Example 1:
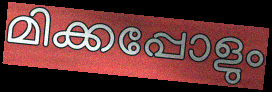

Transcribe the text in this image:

മിക്കപ്പോളും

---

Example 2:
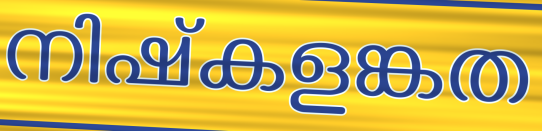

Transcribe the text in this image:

നിഷ്‌കളങ്കത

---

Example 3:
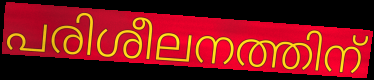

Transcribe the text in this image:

പരിശീലനത്തിന്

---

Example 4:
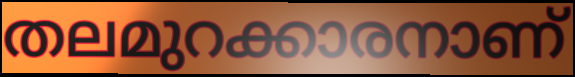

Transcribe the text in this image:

തലമുറക്കാരനാണ്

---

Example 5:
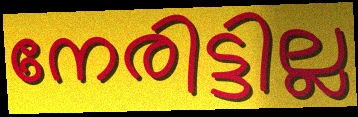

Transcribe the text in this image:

നേരിട്ടില്ല